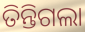
ତିନ୍ତିଗଲା